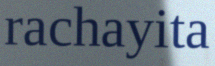
rachayita